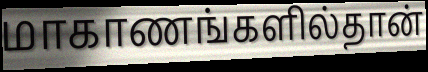
மாகாணங்களில்தான்